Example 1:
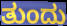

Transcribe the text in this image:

ತುಂದು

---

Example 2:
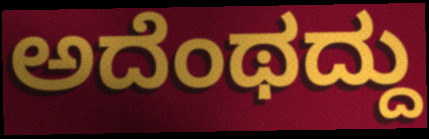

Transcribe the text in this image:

ಅದೆಂಥದ್ದು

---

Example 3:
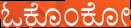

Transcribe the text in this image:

ಓಕೊಂಕೋ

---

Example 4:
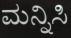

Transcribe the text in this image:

ಮನ್ನಿಸಿ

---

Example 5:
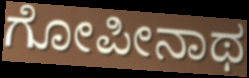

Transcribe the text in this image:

ಗೋಪೀನಾಥ